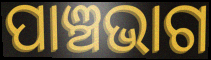
ପାଞ୍ଚଭାଗ